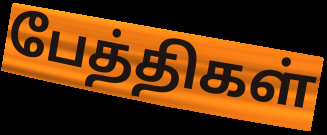
பேத்திகள்